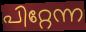
പിറ്റേന്ന